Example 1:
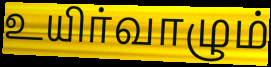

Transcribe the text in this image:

உயிர்வாழும்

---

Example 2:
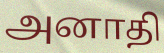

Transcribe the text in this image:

அனாதி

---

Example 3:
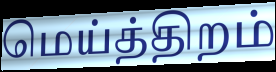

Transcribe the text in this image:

மெய்த்திறம்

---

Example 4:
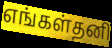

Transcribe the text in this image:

எங்கள்தனி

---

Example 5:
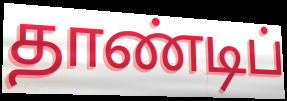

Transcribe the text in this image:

தாண்டிப்